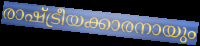
രാഷ്ട്രീയക്കാരനായും